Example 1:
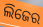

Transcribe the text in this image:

ଲିଜେର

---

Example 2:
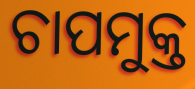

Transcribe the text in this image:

ଚାପମୁକ୍ତ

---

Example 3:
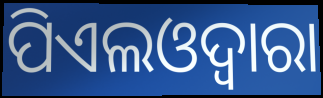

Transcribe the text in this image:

ପିଏଲଓଦ୍ୱାରା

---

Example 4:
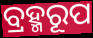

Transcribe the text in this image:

ବ୍ରହ୍ମରୂପ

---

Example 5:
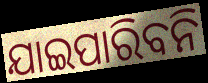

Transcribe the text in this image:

ଯାଇପାରିବନି